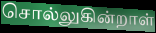
சொல்லுகின்றாள்